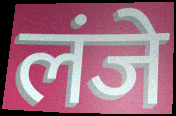
लंजे